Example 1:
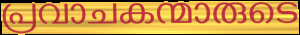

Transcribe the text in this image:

പ്രവാചകന്മാരുടെ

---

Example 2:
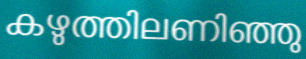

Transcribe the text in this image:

കഴുത്തിലണിഞ്ഞു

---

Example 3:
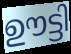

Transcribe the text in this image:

ഊട്ടി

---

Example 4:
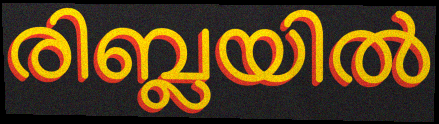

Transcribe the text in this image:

രിബ്ലയിൽ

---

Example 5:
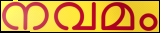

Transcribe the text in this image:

നവമം